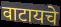
वाटायचे